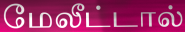
மேலீட்டால்